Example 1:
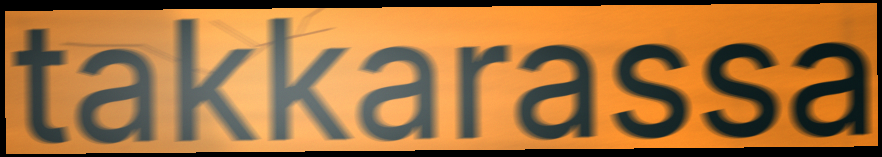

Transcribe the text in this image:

takkarassa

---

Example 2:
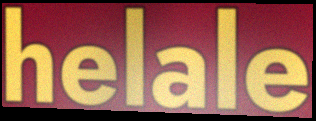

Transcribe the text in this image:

helale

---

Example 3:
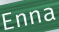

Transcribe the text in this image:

Enna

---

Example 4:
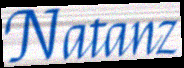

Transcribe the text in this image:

Natanz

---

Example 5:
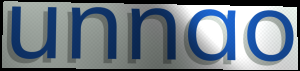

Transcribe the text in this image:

unnao